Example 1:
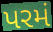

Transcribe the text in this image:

પરમં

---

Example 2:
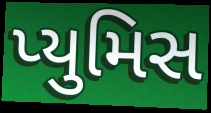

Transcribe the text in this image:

પ્યુમિસ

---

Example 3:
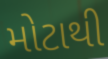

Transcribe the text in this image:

મોટાથી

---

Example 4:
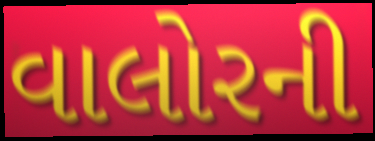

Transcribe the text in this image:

વાલોરની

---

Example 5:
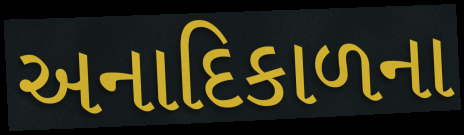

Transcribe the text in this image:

અનાદિકાળના